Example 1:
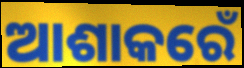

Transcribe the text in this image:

ଆଶାକରେଁ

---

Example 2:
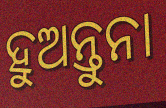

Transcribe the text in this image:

ହୁଅନ୍ତୁନା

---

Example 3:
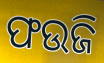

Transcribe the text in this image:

ଫଉଜି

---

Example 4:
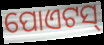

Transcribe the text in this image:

ପୋଏଟସ୍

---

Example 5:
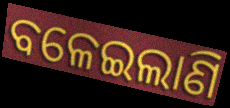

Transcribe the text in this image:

ବଳେଇଲାଣି